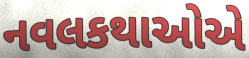
નવલકથાઓએ